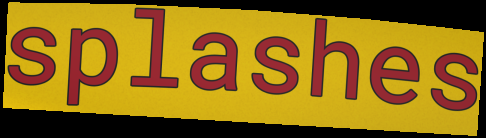
splashes